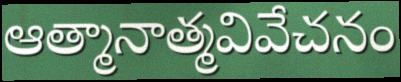
ఆత్మానాత్మవివేచనం